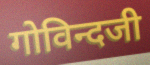
गोविन्दजी